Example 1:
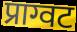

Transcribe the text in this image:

प्राग्वट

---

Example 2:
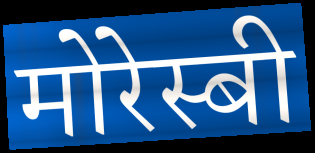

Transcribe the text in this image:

मोरेस्बी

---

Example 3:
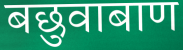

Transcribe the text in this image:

बछुवाबाण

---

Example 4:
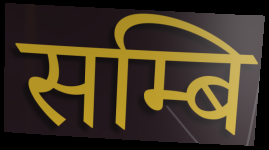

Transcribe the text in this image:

सम्बि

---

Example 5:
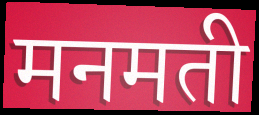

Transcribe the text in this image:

मनमती